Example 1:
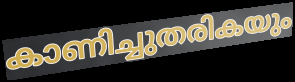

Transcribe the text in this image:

കാണിച്ചുതരികയും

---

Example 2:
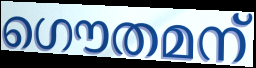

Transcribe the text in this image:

ഗൌതമന്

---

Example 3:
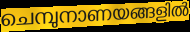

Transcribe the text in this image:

ചെമ്പുനാണയങ്ങളിൽ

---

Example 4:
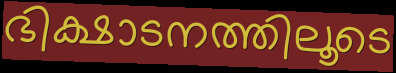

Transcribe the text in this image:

ഭിക്ഷാടനത്തിലൂടെ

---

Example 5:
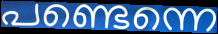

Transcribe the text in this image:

പണ്ടെന്നെ